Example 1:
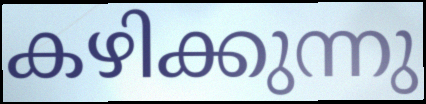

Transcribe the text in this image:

കഴിക്കുന്നു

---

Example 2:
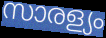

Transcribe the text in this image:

സാരള്യം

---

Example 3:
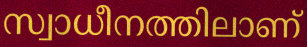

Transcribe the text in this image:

സ്വാധീനത്തിലാണ്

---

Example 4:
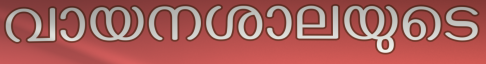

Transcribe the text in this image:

വായനശാലയുടെ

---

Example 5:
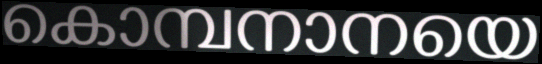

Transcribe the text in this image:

കൊമ്പനാനയെ